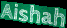
Aishah